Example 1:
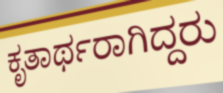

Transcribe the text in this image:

ಕೃತಾರ್ಥರಾಗಿದ್ದರು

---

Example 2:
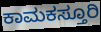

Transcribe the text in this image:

ಕಾಮಕಸ್ತೂರಿ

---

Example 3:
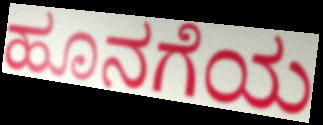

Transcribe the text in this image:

ಹೂನಗೆಯ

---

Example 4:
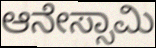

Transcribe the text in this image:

ಆನೇಸ್ಸಾಮಿ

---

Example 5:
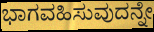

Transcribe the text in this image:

ಭಾಗವಹಿಸುವುದನ್ನೇ